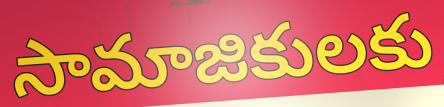
సామాజికులకు